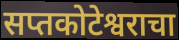
सप्तकोटेश्वराचा